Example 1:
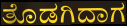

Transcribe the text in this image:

ತೊಡಗಿದಾಗ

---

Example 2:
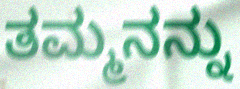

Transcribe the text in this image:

ತಮ್ಮನನ್ನು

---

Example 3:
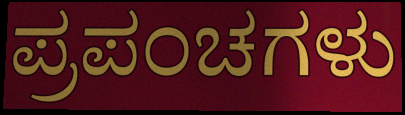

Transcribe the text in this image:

ಪ್ರಪಂಚಗಳು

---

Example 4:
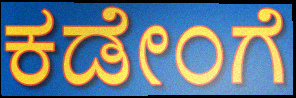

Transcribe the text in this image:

ಕಡೇಂಗೆ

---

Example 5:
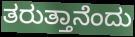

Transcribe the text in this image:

ತರುತ್ತಾನೆಂದು